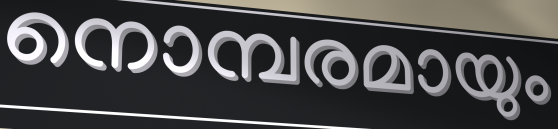
നൊമ്പരമായും